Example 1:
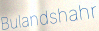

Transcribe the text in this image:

Bulandshahr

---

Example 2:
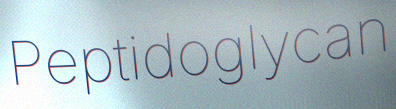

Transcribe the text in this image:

Peptidoglycan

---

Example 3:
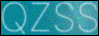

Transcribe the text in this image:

QZSS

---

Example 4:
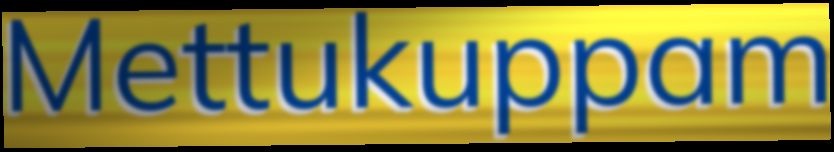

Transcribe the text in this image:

Mettukuppam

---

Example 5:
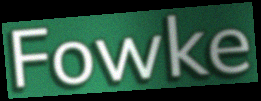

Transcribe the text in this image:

Fowke